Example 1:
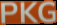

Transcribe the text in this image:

PKG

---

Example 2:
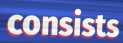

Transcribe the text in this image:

consists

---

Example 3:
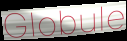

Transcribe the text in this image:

Globule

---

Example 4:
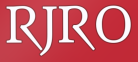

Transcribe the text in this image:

RJRO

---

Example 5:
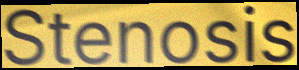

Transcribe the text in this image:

Stenosis